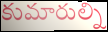
కుమారుల్ని